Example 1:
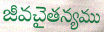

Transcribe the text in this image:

జీవచైతన్యము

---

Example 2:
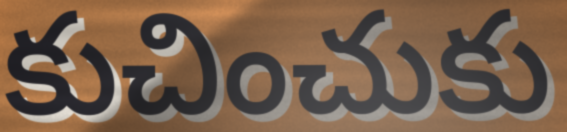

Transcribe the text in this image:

కుచించుకు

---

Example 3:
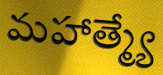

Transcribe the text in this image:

మహాత్మ్యే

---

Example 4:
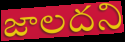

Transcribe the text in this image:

జాలదని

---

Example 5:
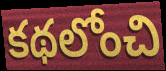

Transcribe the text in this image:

కథలోంచి